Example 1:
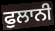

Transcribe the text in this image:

ਫੁਲਾਨੀ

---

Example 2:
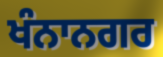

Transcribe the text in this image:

ਖੰਨਾਨਗਰ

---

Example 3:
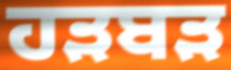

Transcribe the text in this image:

ਹੜਬੜ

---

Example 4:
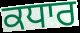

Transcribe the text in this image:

ਕਧਾਰ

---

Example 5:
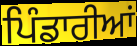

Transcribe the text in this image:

ਪਿੰਡਾਰੀਆਂ